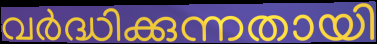
വർദ്ധിക്കുന്നതായി